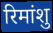
रिमांशु